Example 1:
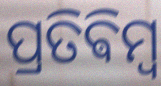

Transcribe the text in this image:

ପ୍ରତିଵିମ୍ବ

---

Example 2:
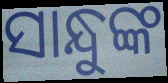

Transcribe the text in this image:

ସାନ୍ଧୁଙ୍କ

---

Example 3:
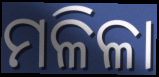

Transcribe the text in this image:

ମଳିଳା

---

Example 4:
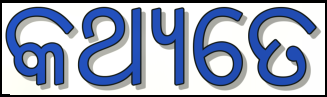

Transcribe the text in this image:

କଥ୍ୟତେ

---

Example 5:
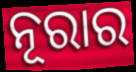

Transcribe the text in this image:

ନୂରାର